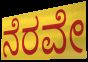
ನೆರವೇ